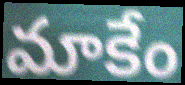
మాకేం